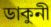
ডাকুনী